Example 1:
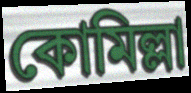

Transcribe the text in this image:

কোমিল্লা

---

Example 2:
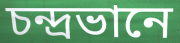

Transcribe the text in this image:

চন্দ্ৰভানে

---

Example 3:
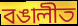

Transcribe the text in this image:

বঙালীত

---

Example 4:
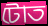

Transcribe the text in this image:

টোত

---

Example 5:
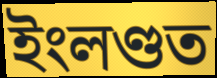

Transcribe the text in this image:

ইংলণ্ডত